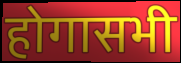
होगासभी